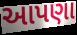
આપણા